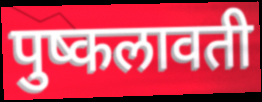
पुष्कलावती